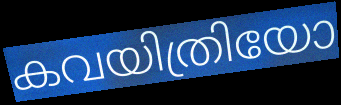
കവയിത്രിയോ